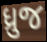
ધ્રુજ